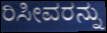
ರಿಸೀವರನ್ನು